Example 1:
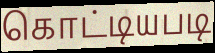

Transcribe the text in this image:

கொட்டியபடி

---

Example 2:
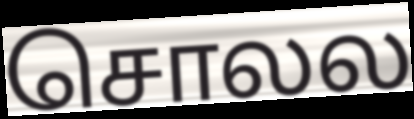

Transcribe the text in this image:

சொலல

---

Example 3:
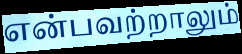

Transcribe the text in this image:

என்பவற்றாலும்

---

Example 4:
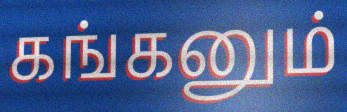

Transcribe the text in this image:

கங்கனும்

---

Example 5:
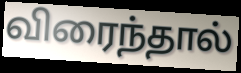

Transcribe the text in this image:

விரைந்தால்